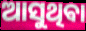
ଆସୁଥିଵା